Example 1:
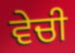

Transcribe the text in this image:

ਵੇਚੀ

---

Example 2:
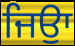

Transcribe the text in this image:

ਜਿਉਾ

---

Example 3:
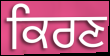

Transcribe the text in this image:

ਕਿਰਣ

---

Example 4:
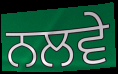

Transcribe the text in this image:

ਨਲਵੇ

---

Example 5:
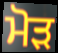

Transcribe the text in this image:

ਮੋਡ਼